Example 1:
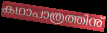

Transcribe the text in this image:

കഥാപാത്രത്തിനു്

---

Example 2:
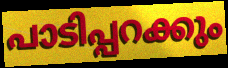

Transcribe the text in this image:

പാടിപ്പറക്കും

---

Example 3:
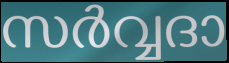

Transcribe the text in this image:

സർവ്വദാ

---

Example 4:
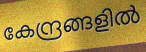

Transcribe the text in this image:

കേന്ദ്രങ്ങളിൽ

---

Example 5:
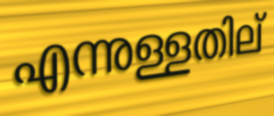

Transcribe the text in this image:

എന്നുള്ളതില്